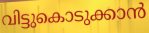
വിട്ടുകൊടുക്കാൻ